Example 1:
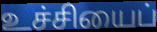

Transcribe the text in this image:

உச்சியைப்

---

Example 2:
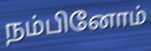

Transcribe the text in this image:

நம்பினோம்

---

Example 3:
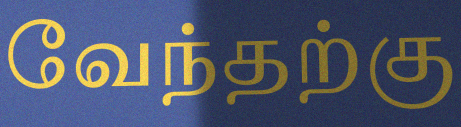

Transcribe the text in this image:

வேந்தற்கு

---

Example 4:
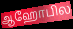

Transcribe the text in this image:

ஆஹோபில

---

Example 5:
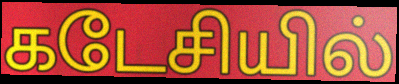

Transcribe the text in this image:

கடேசியில்